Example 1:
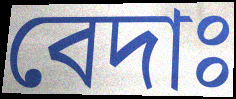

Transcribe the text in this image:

বেদাঃ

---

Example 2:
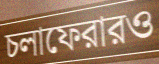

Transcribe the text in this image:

চলাফেরারও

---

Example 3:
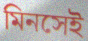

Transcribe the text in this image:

মিনসেই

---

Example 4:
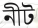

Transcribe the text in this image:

নীট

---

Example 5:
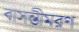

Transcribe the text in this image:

বাসন্তীমরণ